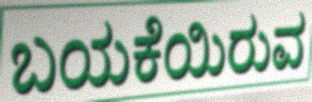
ಬಯಕೆಯಿರುವ